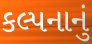
કલ્પનાનું